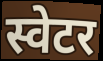
स्वेटर